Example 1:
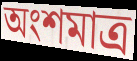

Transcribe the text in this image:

অংশমাত্র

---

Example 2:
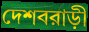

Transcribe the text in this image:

দেশবরাড়ী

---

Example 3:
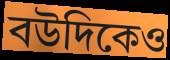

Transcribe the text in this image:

বউদিকেও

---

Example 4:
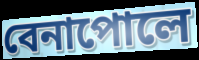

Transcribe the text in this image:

বেনাপোলে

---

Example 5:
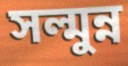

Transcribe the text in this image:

সল্মুন্ন